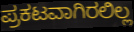
ಪ್ರಕಟವಾಗಿರಲಿಲ್ಲ